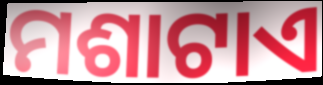
ମଶାଟାଏ